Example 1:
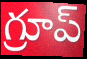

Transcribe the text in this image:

గ్రూప్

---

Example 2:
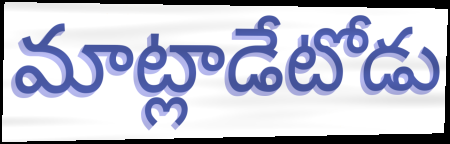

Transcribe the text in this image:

మాట్లాడేటోడు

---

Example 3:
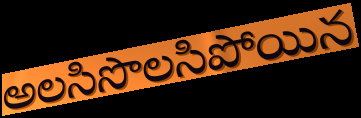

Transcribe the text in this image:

అలసిసొలసిపోయిన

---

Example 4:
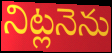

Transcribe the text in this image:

నిట్లనెను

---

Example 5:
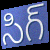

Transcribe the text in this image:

సిగ్